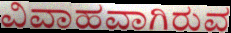
ವಿವಾಹವಾಗಿರುವ